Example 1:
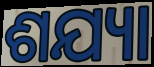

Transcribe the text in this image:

ଶଯ୍ୟା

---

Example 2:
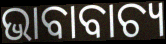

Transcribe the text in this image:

ଭାବାବାଚ୍ୟ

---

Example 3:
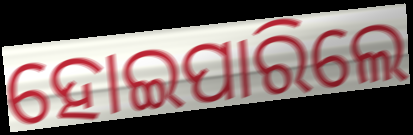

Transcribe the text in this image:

ହୋଇପାରିଲେ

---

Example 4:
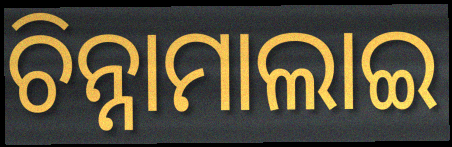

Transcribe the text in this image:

ଚିନ୍ନାମାଲାଇ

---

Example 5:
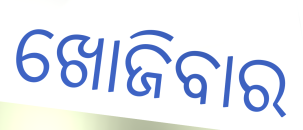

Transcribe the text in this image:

ଖୋଜିବାର